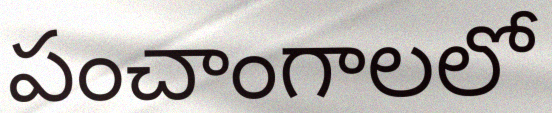
పంచాంగాలలో